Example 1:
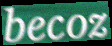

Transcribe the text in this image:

becoz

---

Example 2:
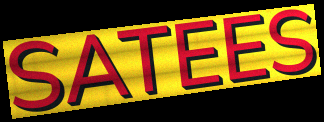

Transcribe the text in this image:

SATEES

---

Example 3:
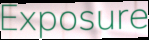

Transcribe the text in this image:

Exposure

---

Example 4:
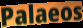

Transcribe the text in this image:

Palaeos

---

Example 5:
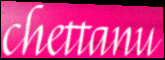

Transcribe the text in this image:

chettanu